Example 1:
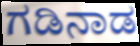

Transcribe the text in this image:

ಗಡಿನಾಡ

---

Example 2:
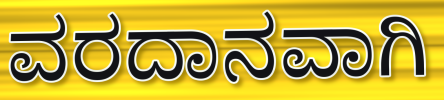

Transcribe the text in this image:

ವರದಾನವಾಗಿ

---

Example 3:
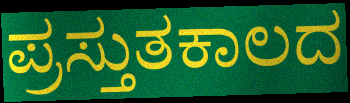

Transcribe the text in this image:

ಪ್ರಸ್ತುತಕಾಲದ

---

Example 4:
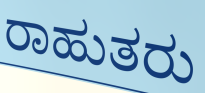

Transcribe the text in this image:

ರಾಹುತರು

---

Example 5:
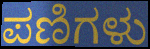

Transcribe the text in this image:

ಪಣಿಗಳು